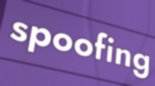
spoofing